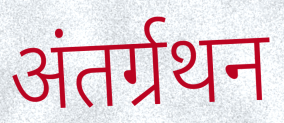
अंतर्ग्रथन